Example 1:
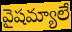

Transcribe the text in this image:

వైషమ్యాలే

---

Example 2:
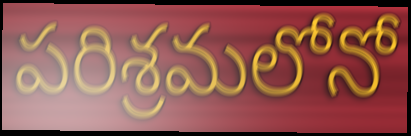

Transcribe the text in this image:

పరిశ్రమలోనో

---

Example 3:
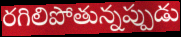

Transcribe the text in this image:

రగిలిపోతున్నప్పుడు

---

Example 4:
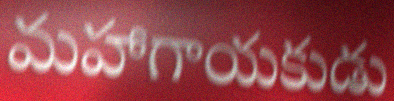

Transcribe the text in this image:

మహాగాయకుడు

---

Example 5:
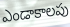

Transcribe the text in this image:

ఎండాకాలపు